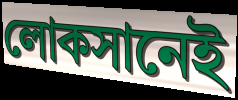
লোকসানেই